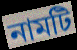
নামটি